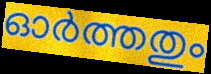
ഓർത്തതും